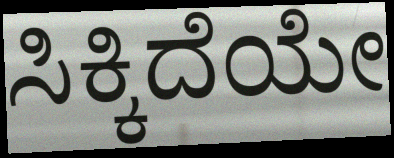
ಸಿಕ್ಕಿದೆಯೇ